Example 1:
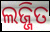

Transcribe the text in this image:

ଲଜ୍ଜିତ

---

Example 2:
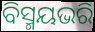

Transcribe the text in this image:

ବିସ୍ମୟଭରି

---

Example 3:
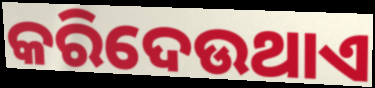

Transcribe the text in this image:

କରିଦେଉଥାଏ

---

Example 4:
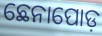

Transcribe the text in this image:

ଛେନାପୋଡ଼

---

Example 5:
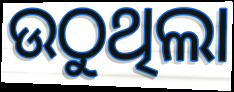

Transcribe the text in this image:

ଉଠୁଥିଲା